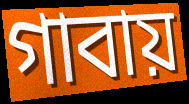
গাবায়